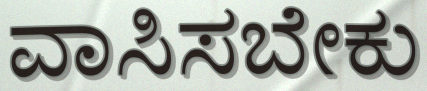
ವಾಸಿಸಬೇಕು